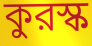
কুরস্ক